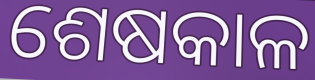
ଶେଷକାଳ